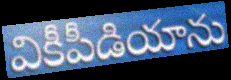
వికీపీడియాను